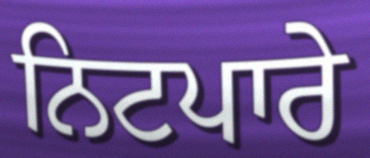
ਨਿਟਪਾਰੇ